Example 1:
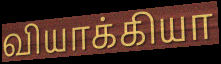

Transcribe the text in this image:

வியாக்கியா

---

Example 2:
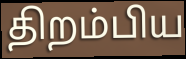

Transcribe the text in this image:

திறம்பிய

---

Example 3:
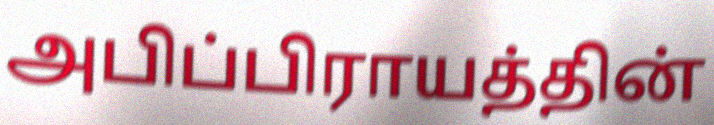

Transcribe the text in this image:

அபிப்பிராயத்தின்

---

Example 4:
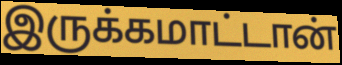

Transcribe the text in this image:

இருக்கமாட்டான்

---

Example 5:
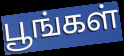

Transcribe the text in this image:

பூங்கள்